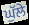
ਘੁੱਲੇ